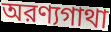
অরণ্যগাথা